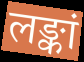
लङ्कां